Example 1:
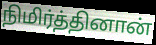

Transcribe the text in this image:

நிமிர்த்தினான்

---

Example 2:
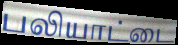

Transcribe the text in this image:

பலியாட்டை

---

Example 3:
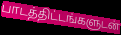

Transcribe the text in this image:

பாடத்திட்டங்களுடன்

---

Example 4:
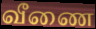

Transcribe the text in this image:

வீணை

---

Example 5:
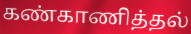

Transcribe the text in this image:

கண்காணித்தல்